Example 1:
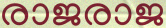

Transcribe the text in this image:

രാജരാജ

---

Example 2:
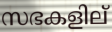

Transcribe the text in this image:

സഭകളില്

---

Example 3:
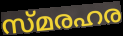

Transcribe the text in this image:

സ്മരഹര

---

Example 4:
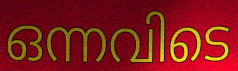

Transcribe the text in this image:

ഒന്നവിടെ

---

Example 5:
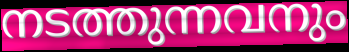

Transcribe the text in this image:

നടത്തുന്നവനും